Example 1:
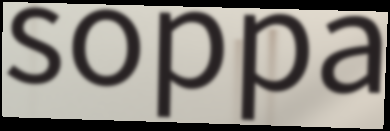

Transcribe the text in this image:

soppa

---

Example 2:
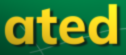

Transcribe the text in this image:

ated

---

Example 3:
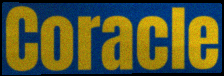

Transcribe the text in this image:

Coracle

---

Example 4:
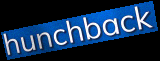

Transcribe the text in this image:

hunchback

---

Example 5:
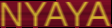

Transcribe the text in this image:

NYAYA